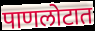
पाणलोटात